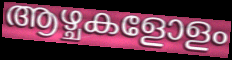
ആഴ്ചകളോളം